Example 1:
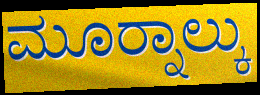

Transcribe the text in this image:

ಮೂರ‍್ನಾಲ್ಕು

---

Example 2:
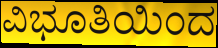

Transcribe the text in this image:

ವಿಭೂತಿಯಿಂದ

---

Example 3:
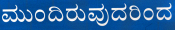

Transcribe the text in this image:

ಮುಂದಿರುವುದರಿಂದ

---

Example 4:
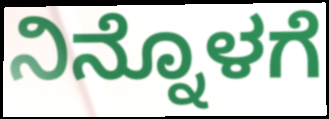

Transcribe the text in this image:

ನಿನ್ನೊಳಗೆ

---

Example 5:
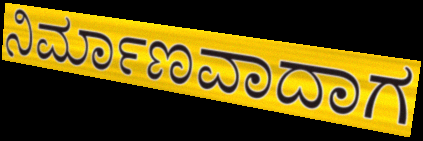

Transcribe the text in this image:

ನಿರ್ಮಾಣವಾದಾಗ